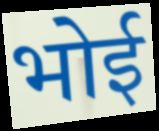
भोई